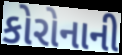
કોરોનાની